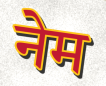
नेम